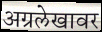
अग्रलेखावर